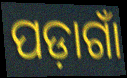
ପଡ଼ାଗାଁ